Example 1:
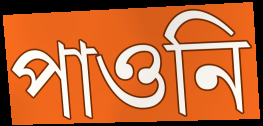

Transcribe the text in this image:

পাওনি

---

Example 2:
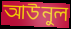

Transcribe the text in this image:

আউনুল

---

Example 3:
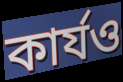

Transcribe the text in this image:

কার্যও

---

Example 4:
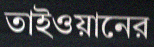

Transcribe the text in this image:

তাইওয়ানের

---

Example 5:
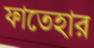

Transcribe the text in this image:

ফাতেহার